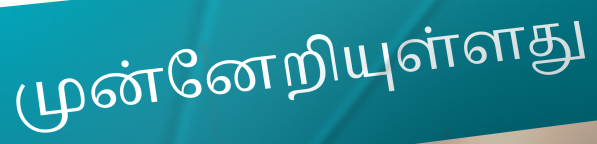
முன்னேறியுள்ளது